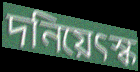
দনিয়েৎস্ক